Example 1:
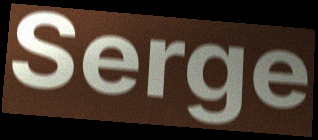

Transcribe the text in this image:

Serge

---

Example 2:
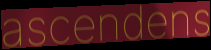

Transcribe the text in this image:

ascendens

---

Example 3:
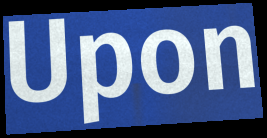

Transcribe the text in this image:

Upon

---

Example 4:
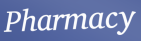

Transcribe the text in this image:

Pharmacy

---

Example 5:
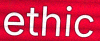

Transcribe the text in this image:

ethic